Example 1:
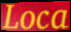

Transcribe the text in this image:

Loca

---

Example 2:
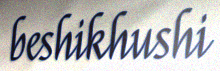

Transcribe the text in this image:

beshikhushi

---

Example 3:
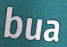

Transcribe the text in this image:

bua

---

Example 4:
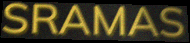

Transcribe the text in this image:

SRAMAS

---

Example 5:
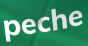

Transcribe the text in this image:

peche